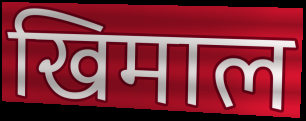
खिमाल